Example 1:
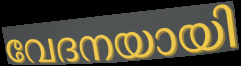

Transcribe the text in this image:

വേദനയായി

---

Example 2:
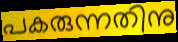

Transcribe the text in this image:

പകരുന്നതിനു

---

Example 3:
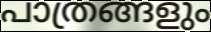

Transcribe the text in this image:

പാത്രങ്ങളും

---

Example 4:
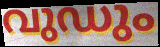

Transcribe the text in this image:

വുഡും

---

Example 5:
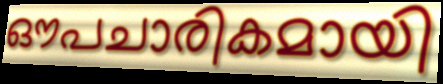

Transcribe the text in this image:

ഔപചാരികമായി